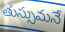
తుస్సుమనే